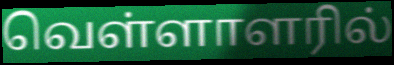
வெள்ளாளரில்